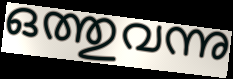
ഒത്തുവന്നു